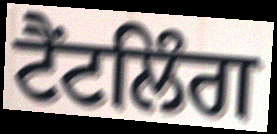
ਟੈਂਟਲਿੰਗ